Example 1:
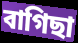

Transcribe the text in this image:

বাগিছা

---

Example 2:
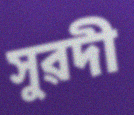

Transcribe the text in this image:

সুৱদী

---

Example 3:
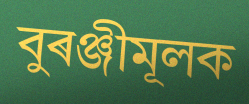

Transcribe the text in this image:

বুৰঞ্জীমূলক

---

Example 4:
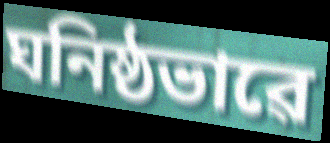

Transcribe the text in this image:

ঘনিষ্ঠভাৱে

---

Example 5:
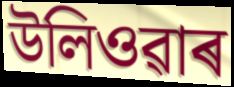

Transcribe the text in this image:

উলিওৱাৰ